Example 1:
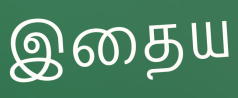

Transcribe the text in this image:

இதைய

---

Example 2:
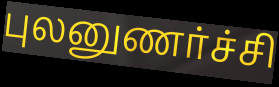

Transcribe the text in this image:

புலனுணர்ச்சி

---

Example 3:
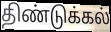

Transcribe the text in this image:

திண்டுக்கல்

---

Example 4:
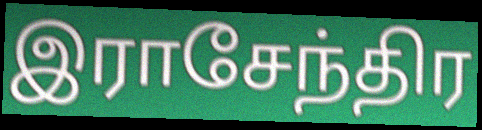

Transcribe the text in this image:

இராசேந்திர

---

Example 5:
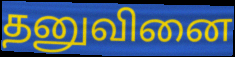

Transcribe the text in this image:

தனுவினை